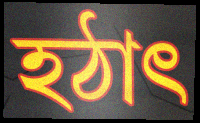
হঠাৎ